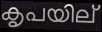
കൃപയില്